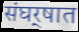
संघर्षात